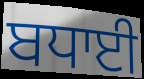
ਬਧਾਈ